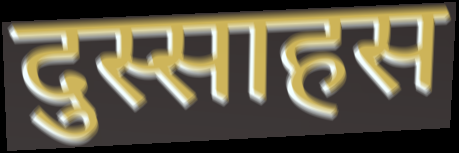
दुस्साहस